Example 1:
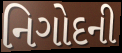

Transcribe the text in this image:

નિગોદની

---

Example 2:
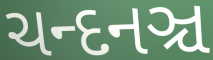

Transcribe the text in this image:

ચન્દનઞ્ચ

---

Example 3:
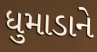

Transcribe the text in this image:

ધુમાડાને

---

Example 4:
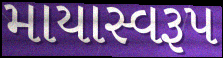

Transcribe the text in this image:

માયાસ્વરૂપ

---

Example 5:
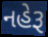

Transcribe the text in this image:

નહેરૂ